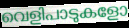
വെളിപാടുകളോ